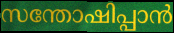
സന്തോഷിപ്പാൻ